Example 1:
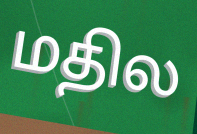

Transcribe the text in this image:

மதில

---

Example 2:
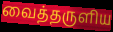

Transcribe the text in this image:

வைத்தருளிய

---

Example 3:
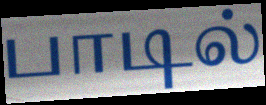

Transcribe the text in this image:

பாடில்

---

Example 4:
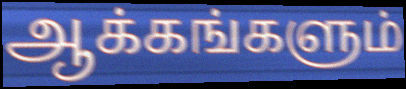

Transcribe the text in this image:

ஆக்கங்களும்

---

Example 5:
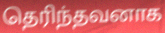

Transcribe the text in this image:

தெரிந்தவனாக